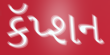
કૅપ્શન